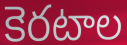
కెరటాల